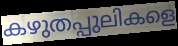
കഴുതപ്പുലികളെ